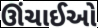
ઊંચાઈઓ